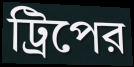
ট্রিপের